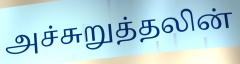
அச்சுறுத்தலின்